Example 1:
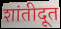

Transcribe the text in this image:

शांतीदूत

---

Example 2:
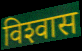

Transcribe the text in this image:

विश्‍वास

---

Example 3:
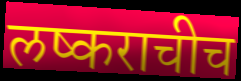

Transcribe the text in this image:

लष्कराचीच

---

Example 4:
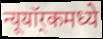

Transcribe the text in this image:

न्यूयॉर्कमध्ये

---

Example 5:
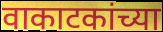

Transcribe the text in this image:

वाकाटकांच्या